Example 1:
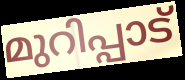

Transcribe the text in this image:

മുറിപ്പാട്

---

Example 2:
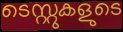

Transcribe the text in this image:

ടെസ്റ്റുകളുടെ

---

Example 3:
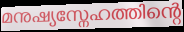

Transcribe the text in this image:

മനുഷ്യസ്നേഹത്തിന്റെ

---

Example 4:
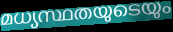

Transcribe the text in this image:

മധ്യസ്ഥതയുടെയും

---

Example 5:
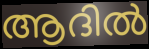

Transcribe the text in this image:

ആദിൽ